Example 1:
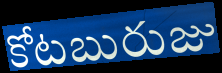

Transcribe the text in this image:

కోటబురుజు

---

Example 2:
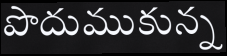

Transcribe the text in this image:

పొదుముకున్న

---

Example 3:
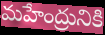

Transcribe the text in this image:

మహేంద్రునికి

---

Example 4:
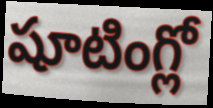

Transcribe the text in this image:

షూటింగ్లో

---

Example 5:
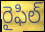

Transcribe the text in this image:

రైఫిల్